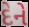
દેને